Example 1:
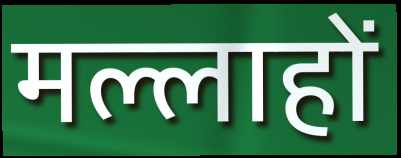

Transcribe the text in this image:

मल्लाहों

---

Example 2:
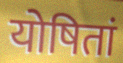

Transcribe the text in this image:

योषितां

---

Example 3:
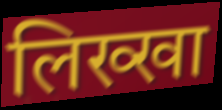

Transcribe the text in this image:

लिख्खा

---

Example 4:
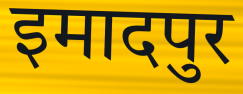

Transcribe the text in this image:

इमादपुर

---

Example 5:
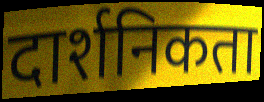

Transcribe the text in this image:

दार्शनिकता